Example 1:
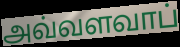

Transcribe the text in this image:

அவ்வளவாப்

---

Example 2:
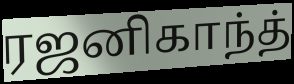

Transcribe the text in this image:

ரஜனிகாந்த்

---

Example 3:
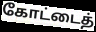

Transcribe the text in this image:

கோட்டைத்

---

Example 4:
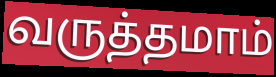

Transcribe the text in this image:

வருத்தமாம்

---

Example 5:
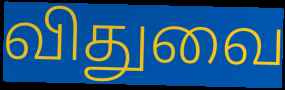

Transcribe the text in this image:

விதுவை